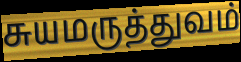
சுயமருத்துவம்